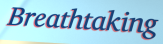
Breathtaking